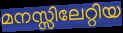
മനസ്സിലേറ്റിയ